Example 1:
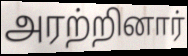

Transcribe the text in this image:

அரற்றினார்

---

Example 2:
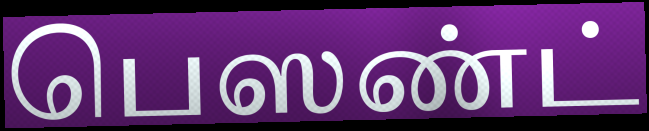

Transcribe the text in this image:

பெஸண்ட்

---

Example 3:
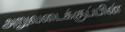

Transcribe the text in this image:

அறுவடைக்குப்பின்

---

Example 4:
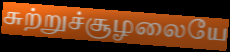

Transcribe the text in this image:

சுற்றுச்சூழலையே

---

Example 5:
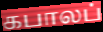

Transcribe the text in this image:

கபாலப்